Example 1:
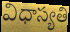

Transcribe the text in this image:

విధాస్యతి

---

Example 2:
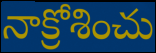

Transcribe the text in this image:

నాక్రోశించు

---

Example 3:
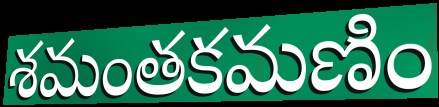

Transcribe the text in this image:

శమంతకమణిం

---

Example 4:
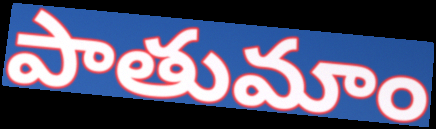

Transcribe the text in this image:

పాతుమాం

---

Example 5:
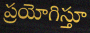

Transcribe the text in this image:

ప్రయోగిస్తూ